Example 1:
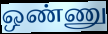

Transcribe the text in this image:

ஒண்ணு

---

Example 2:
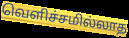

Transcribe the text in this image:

வெளிச்சமில்லாத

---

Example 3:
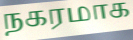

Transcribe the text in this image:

நகரமாக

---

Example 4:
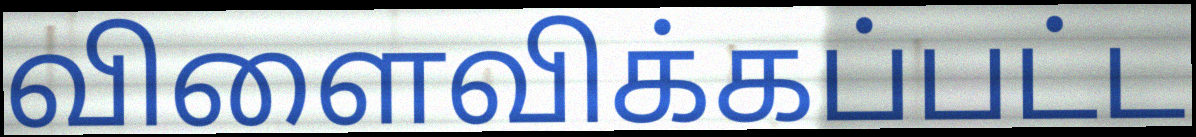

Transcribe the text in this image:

விளைவிக்கப்பட்ட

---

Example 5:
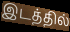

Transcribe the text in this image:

இடத்தில்